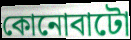
কোনোবাটো